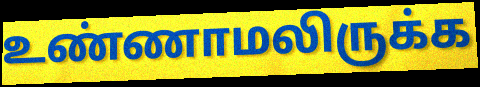
உண்ணாமலிருக்க